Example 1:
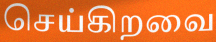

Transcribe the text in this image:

செய்கிறவை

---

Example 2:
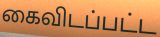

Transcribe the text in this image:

கைவிடப்பட்ட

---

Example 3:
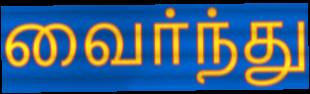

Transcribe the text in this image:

வைர்ந்து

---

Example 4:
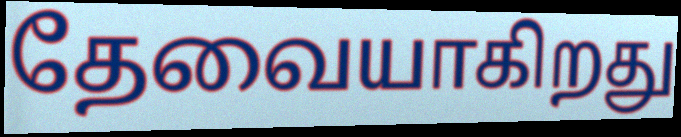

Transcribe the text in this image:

தேவையாகிறது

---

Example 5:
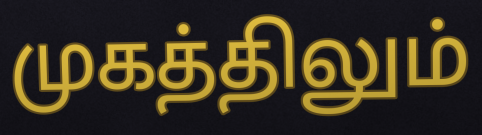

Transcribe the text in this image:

முகத்திலும்